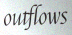
outflows